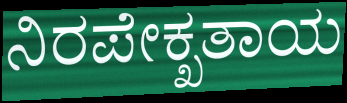
ನಿರಪೇಕ್ಖತಾಯ